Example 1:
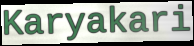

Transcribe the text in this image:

Karyakari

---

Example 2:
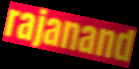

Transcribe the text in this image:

rajanand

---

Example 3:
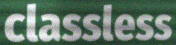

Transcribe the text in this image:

classless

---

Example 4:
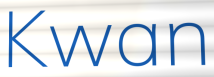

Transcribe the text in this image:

Kwan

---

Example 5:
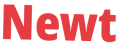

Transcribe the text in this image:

Newt